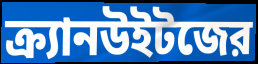
ক্র্যানউইটজের